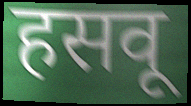
हसवू